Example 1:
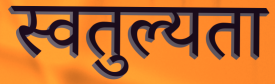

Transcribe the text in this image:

स्वतुल्यता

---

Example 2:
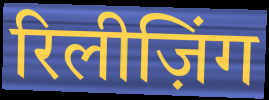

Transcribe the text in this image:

रिलीज़िंग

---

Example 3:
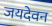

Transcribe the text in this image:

जयदेवन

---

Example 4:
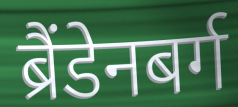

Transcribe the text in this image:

ब्रैंडेनबर्ग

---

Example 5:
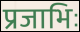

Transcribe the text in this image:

प्रजाभिः